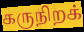
கருநிறக்